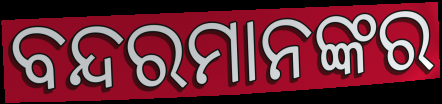
ବନ୍ଦରମାନଙ୍କର